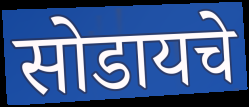
सोडायचे